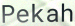
Pekah